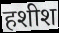
हशीश